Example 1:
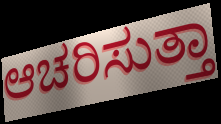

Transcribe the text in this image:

ಆಚರಿಸುತ್ತಾ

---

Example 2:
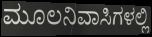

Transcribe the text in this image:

ಮೂಲನಿವಾಸಿಗಳಲ್ಲಿ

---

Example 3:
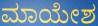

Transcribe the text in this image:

ಮಾಯೇಶ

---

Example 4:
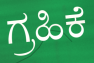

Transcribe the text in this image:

ಗ್ರಹಿಕೆ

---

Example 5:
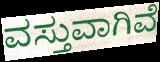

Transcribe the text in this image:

ವಸ್ತುವಾಗಿವೆ